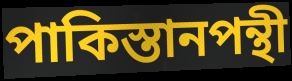
পাকিস্তানপন্থী